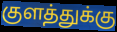
குளத்துக்கு